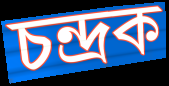
চন্দ্ৰক